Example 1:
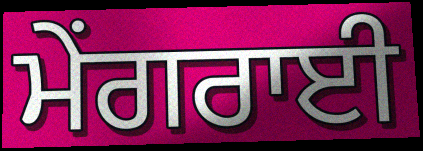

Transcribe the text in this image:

ਮੇਂਗਰਾਈ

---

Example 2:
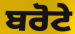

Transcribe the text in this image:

ਬਰੋਟੇ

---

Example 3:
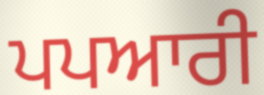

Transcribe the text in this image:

ਪਪਆਰੀ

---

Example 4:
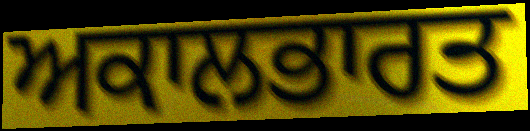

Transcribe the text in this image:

ਅਕਾਲਭਾਰਤ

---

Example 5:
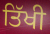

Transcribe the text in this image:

ਤਿੱਖੀ